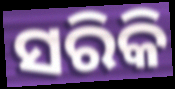
ସରିକି